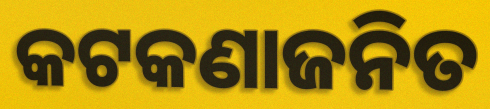
କଟକଣାଜନିତ